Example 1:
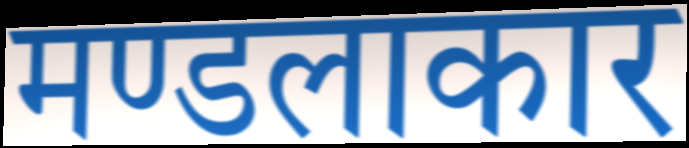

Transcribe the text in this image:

मण्डलाकार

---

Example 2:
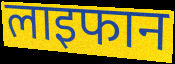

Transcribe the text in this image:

लाइफान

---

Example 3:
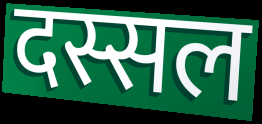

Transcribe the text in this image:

दस्सल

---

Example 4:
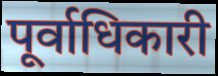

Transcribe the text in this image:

पूर्वाधिकारी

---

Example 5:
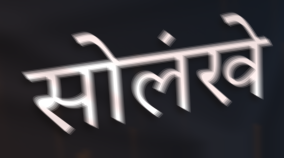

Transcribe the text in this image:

सोलंखे